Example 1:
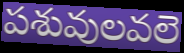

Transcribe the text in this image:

పశువులవలె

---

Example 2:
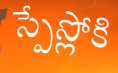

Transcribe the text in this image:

స్పేస్లోకి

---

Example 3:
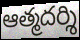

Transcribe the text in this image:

ఆత్మదర్శి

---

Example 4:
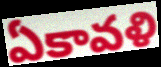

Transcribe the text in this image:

ఏకావళి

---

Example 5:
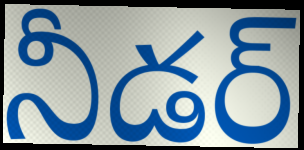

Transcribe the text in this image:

నీడర్